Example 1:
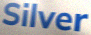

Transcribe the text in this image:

Silver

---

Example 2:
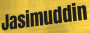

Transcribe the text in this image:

Jasimuddin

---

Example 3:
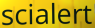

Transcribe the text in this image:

scialert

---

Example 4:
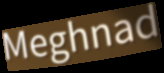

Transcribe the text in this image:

Meghnad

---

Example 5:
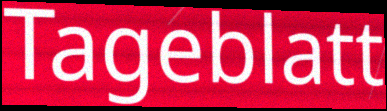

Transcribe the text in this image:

Tageblatt